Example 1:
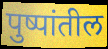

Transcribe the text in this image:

पुष्पांतील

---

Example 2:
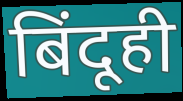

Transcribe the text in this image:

बिंदूही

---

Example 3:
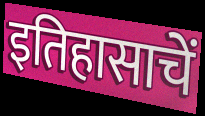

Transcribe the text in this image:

इतिहासाचें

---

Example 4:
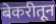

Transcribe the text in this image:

बेकरीतून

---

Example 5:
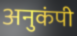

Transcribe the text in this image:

अनुकंपी